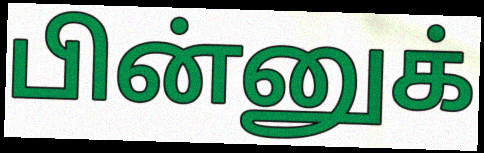
பின்னுக்